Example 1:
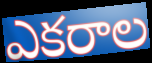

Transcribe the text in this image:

ఎకరాల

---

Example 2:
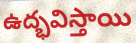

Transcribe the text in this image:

ఉద్భవిస్తాయి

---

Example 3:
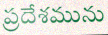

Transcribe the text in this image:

ప్రదేశమును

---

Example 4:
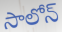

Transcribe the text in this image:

సాలోన్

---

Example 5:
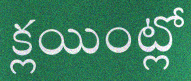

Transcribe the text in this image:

క్లయింట్లో